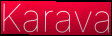
Karava